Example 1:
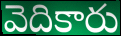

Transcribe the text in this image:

వెదికారు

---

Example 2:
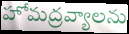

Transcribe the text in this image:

హోమద్రవ్యాలను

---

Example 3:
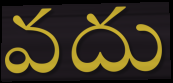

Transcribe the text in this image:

వదు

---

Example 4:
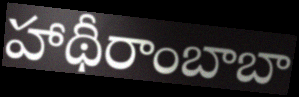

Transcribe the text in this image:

హాథీరాంబాబా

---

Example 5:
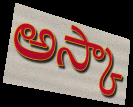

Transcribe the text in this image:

అస్కా